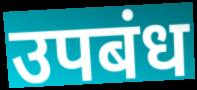
उपबंध